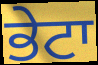
ਭੇਟਾ